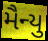
મૈન્યુ